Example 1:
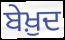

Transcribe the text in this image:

ਬੇਖ਼ੁਦ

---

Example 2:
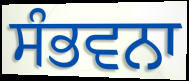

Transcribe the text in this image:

ਸੰਭਵਨਾ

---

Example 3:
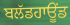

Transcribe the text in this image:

ਬਲੱਡਹਾਊਂਡ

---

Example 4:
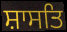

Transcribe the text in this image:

ਸ਼ਾਸਤਿ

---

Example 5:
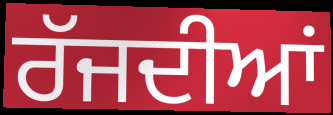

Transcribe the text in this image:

ਰੱਜਦੀਆਂ